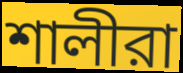
শালীরা